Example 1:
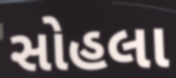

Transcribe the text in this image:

સોહલા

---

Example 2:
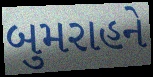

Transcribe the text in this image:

બુમરાહને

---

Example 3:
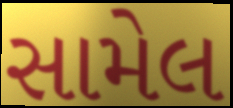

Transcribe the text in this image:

સામેલ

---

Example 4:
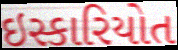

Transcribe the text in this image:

ઇસ્કારિયોત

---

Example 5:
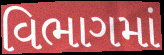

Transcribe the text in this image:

વિભાગમાં